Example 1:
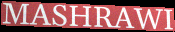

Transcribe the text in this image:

MASHRAWI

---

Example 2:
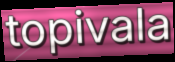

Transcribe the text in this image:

topivala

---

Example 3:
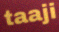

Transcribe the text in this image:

taaji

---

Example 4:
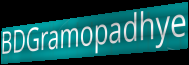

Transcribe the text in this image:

BDGramopadhye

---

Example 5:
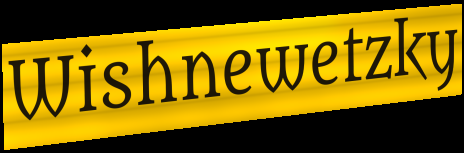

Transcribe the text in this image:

Wishnewetzky